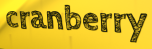
cranberry